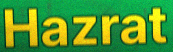
Hazrat